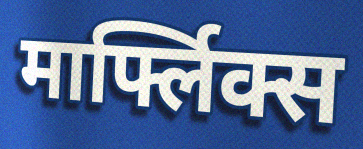
मार्फ्लिक्स